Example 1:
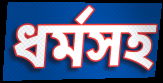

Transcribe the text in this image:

ধর্মসহ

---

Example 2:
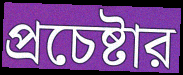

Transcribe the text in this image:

প্রচেষ্টার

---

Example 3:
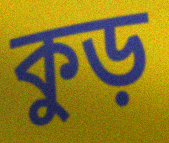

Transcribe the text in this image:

কুড়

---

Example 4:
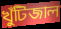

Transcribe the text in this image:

খুঁটিজাল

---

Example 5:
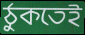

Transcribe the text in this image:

ঠুকতেই